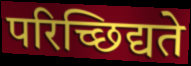
परिच्छिद्यते